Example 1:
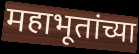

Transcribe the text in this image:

महाभूतांच्या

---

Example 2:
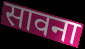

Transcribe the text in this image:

सावना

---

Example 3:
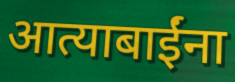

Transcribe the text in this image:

आत्याबाईंना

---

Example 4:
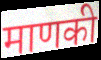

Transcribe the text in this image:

माणकी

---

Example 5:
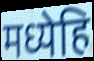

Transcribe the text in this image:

मध्येहि